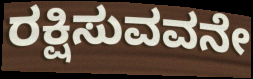
ರಕ್ಷಿಸುವವನೇ